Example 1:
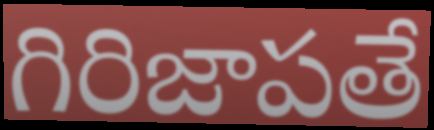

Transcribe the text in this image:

గిరిజాపతే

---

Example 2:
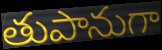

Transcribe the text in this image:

తుపానుగా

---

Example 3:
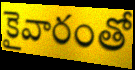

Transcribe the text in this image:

కైవారంతో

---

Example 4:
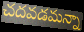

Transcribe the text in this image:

చదవడమన్నా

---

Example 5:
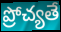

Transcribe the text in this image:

ప్రోచ్యతే